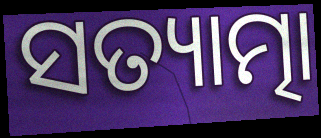
ସତ୍ୟାତ୍ମା